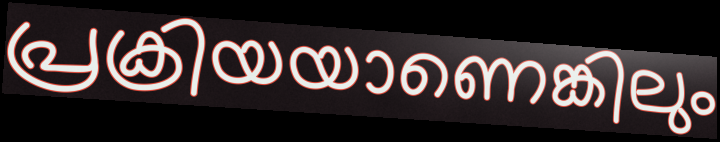
പ്രക്രിയയാണെങ്കിലും